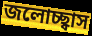
জলোচ্ছ্বাস